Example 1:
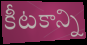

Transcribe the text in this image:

కీటకాన్ని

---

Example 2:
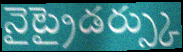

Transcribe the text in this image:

నైట్రైడర్స్కు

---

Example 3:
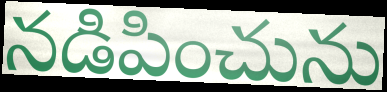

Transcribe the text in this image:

నడిపించును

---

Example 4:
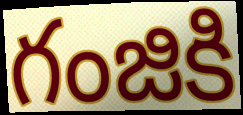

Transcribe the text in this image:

గంజికి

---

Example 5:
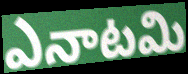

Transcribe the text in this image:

ఎనాటమి